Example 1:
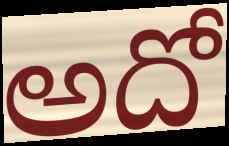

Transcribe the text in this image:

అదో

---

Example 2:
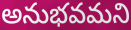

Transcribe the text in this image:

అనుభవమని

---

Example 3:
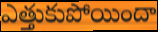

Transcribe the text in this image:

ఎత్తుకుపోయిందా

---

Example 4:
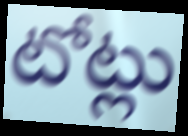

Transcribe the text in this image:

టోట్లు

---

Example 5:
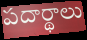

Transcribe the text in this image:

పదార్థాలు